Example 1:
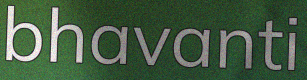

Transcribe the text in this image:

bhavanti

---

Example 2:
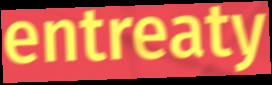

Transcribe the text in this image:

entreaty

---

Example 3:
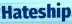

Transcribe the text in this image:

Hateship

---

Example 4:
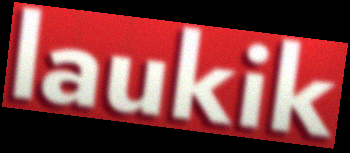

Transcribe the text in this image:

laukik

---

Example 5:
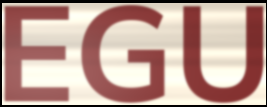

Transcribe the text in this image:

EGU